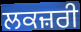
ਲਕਜ਼ਰੀ